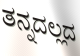
ತನ್ನದಲ್ಲದ